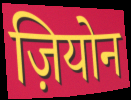
ज़ियोन